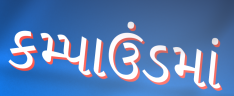
કમ્પાઉંડમાં